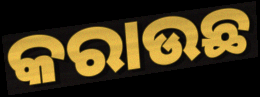
କରାଉଛ